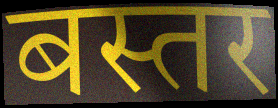
बस्तर